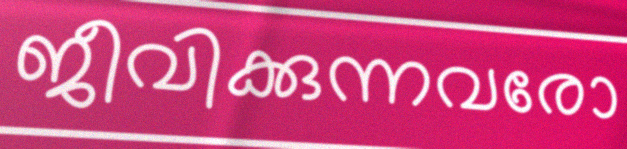
ജീവിക്കുന്നവരോ